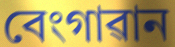
বেংগাৱান